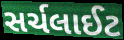
સર્ચલાઈટ